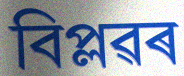
বিপ্লৱৰ